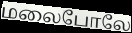
மலைபோலே